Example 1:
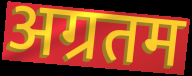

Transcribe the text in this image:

अग्रतम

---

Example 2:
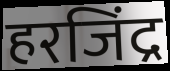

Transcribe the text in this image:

हरजिंद्र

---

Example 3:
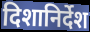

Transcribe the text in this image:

दिशानिर्देश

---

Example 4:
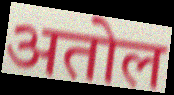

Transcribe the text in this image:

अतोल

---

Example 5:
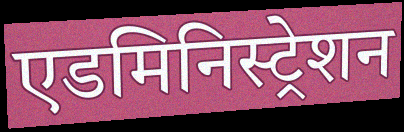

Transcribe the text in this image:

एडमिनिस्‍ट्रेशन